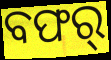
ବଫର୍